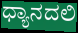
ಧ್ಯಾನದಲಿ